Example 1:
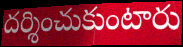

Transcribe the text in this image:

దర్శించుకుంటారు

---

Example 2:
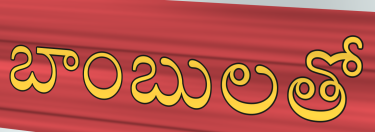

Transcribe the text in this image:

బాంబులతో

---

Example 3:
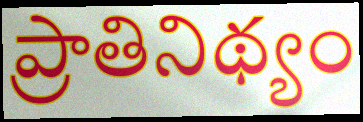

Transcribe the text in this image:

ప్రాతినిథ్యం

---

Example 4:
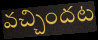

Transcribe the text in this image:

వచ్చిందట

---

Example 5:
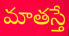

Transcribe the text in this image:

మాతస్తే